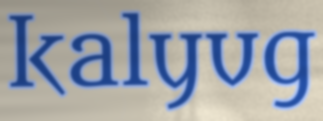
kalyug